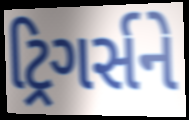
ટ્રિગર્સને